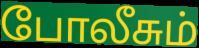
போலீசும்